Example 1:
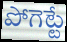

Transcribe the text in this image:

పోగెట్టే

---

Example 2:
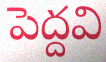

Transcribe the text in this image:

పెద్దవి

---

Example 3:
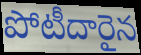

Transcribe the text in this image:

పోటీదారైన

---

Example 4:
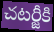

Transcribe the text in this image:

చటర్జీకి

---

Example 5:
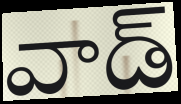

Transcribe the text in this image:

వాడ్